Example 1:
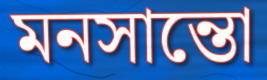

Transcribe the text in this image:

মনসান্তো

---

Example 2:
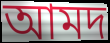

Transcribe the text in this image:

আমদ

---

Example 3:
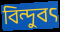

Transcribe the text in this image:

বিন্দুবৎ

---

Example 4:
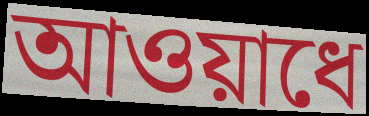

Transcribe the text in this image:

আওয়াধে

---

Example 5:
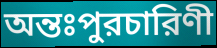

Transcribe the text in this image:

অন্তঃপুরচারিণী